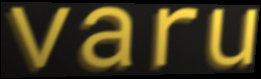
varu